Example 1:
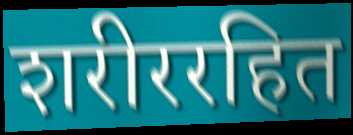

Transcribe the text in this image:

शरीररहित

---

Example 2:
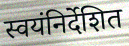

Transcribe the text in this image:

स्वयंनिर्देशित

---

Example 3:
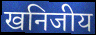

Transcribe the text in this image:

खनिजीय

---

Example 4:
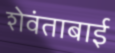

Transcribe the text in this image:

शेवंताबाई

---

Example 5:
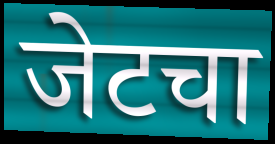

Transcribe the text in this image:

जेटचा